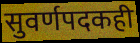
सुवर्णपदकही